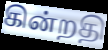
கின்றதி